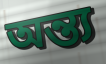
অন্ত্য